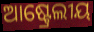
ଆଷ୍ଟ୍ରେଲୀୟ